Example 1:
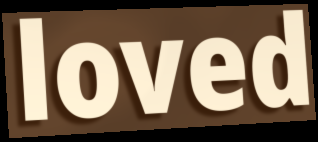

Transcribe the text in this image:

loved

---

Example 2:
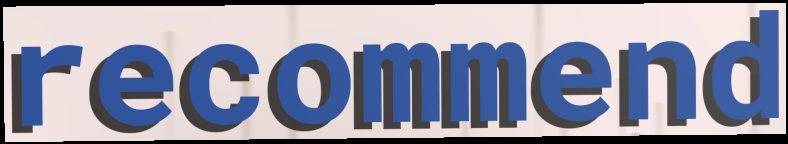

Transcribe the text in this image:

recommend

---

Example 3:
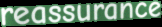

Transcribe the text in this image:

reassurance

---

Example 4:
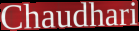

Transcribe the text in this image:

Chaudhari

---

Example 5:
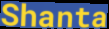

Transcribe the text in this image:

Shanta